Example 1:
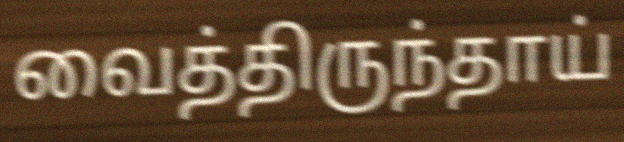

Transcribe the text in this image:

வைத்திருந்தாய்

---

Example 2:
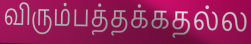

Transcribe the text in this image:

விரும்பத்தக்கதல்ல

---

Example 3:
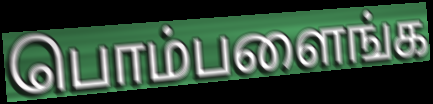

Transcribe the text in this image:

பொம்பளைங்க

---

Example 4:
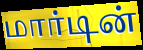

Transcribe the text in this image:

மார்டின்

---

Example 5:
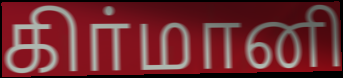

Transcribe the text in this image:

கிர்மானி